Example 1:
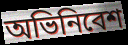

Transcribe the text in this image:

অভিনিবেশ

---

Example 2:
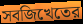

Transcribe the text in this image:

সবজিখেতের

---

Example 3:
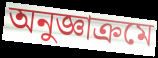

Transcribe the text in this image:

অনুজ্ঞাক্রমে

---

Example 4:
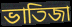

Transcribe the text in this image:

ভাতিজা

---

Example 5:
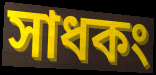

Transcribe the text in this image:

সাধকং